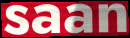
saan